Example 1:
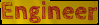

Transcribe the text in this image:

Engineer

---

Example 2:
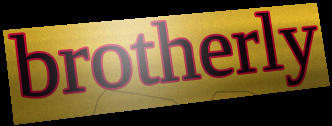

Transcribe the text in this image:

brotherly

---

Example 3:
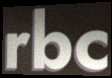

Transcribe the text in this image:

rbc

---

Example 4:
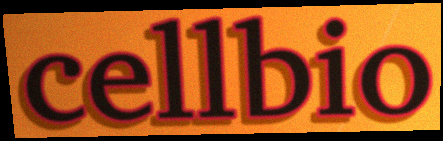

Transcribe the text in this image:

cellbio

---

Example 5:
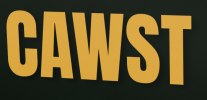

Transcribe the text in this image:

CAWST